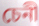
চেনী